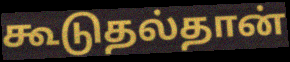
கூடுதல்தான்